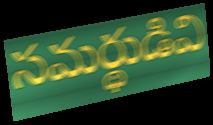
సమర్థుడివి